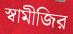
স্বামীজির